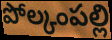
పోల్కంపల్లి